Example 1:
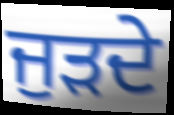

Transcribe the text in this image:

ਜੁੜਦੇ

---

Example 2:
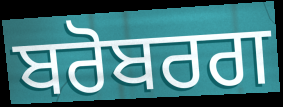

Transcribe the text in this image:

ਬਰੋਬਰਗ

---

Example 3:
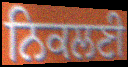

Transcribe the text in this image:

ਨਿਕਲਣੀ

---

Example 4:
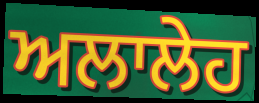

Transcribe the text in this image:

ਅਲਾਲੇਹ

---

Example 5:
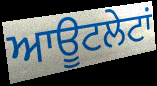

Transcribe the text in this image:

ਆਊਟਲੇਟਾਂ